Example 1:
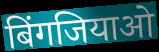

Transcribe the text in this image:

बिंगजियाओ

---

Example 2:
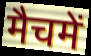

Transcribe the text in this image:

मैचमें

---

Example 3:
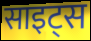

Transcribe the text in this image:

साइट्स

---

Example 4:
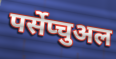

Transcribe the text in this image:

पर्सेप्चुअल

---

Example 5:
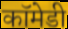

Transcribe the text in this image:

कॉमेडी